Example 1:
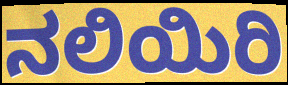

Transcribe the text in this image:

ನಲಿಯಿರಿ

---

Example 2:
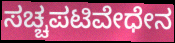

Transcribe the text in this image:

ಸಚ್ಚಪಟಿವೇಧೇನ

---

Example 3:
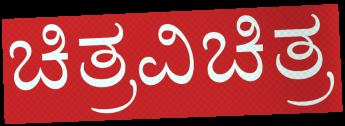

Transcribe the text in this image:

ಚಿತ್ರವಿಚಿತ್ರ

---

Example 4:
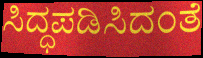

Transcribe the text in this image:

ಸಿದ್ಧಪಡಿಸಿದಂತೆ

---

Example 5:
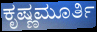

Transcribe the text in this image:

ಕೃಷ್ಣಮೂರ್ತಿ